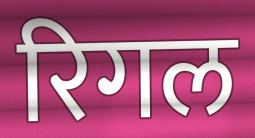
रिगल